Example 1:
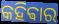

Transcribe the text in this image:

କହିଵାର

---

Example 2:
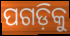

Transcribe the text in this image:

ପଗଡ଼ିକୁ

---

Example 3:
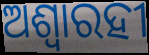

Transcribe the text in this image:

ଅଶ୍ୱାରହୀ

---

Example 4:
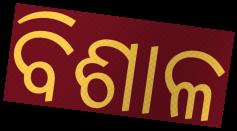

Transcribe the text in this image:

ବିଶାଳ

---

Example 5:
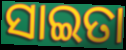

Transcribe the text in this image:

ସାଇତା